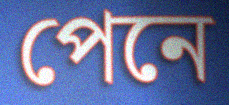
পেনে